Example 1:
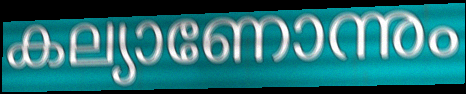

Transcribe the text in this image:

കല്യാണോന്നും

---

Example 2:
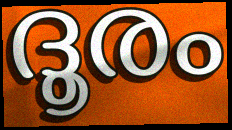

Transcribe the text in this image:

ദൂരം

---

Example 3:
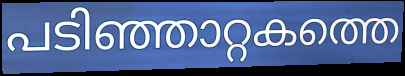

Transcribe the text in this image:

പടിഞ്ഞാറ്റകത്തെ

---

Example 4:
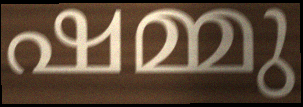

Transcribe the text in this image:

ഷമ്മു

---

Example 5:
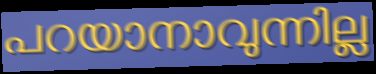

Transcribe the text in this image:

പറയാനാവുന്നില്ല